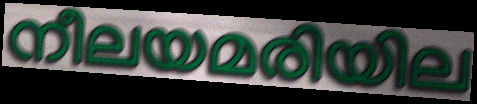
നീലയമരിയില